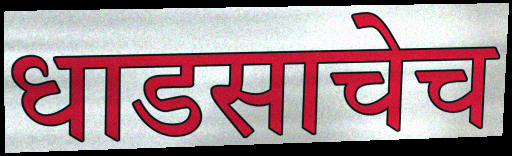
धाडसाचेच